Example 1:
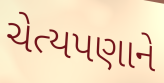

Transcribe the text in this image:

ચેત્યપણાને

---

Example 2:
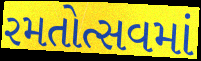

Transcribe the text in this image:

રમતોત્સવમાં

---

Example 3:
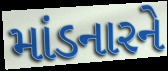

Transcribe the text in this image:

માંડનારને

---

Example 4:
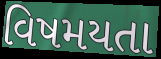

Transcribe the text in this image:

વિષમયતા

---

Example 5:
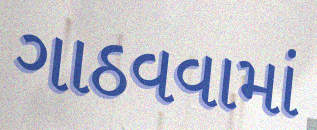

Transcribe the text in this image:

ગાઠવવામાં